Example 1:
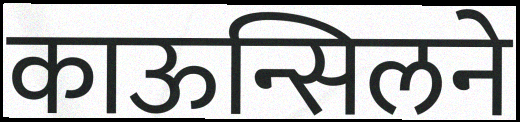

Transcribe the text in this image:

काऊन्सिलने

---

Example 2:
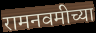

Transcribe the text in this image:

रामनवमीच्या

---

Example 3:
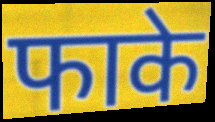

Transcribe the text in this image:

फाके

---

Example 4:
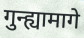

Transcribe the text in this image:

गुन्ह्यामागे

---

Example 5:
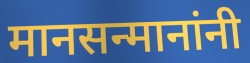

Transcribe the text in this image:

मानसन्मानांनी